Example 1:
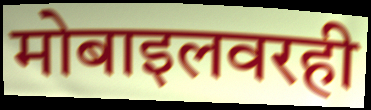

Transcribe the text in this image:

मोबाइलवरही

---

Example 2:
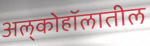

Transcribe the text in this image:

अल्कोहॉलातील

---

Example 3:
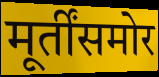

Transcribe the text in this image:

मूर्तींसमोर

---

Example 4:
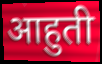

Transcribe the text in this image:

आहुती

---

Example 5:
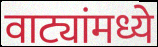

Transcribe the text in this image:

वाट्यांमध्ये